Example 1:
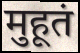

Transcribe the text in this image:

मुहूतं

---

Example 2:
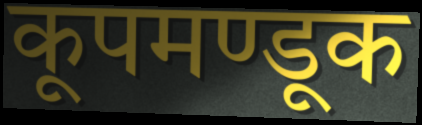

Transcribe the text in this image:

कूपमण्डूक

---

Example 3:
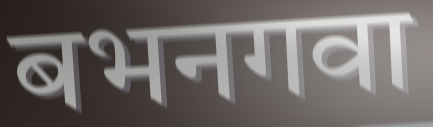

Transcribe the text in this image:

बभनगवा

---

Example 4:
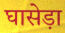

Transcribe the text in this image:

घासेड़ा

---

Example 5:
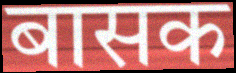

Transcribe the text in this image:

बासक